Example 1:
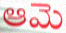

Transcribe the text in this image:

ఆమె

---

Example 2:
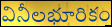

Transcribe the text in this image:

వినీలభూరికం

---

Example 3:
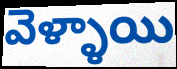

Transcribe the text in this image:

వెళ్ళాయి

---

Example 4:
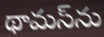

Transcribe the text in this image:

థామస్‌ను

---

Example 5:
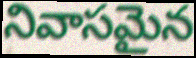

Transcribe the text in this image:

నివాసమైన